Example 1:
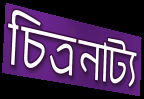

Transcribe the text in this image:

চিত্রনাট্য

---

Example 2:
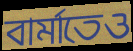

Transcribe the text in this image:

বার্মাতেও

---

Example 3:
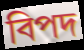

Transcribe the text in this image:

বিপদ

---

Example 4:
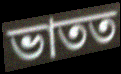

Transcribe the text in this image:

ভাতত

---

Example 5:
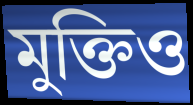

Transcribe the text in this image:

মুক্তিও